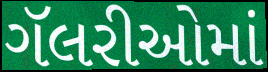
ગૅલરીઓમાં